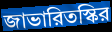
জাভারিতস্কির